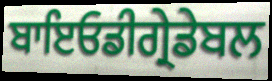
ਬਾਇਓਡੀਗ੍ਰੇਡੇਬਲ